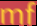
mf